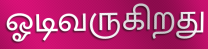
ஓடிவருகிறது